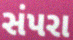
સંપરા